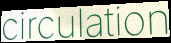
circulation